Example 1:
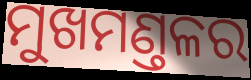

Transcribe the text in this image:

ମୁଖମଣ୍ତଳର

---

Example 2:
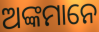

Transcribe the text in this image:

ଅଙ୍କମାନେ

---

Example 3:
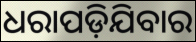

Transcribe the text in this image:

ଧରାପଡ଼ିଯିବାର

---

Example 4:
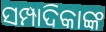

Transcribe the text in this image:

ସମ୍ପାଦିକାଙ୍କ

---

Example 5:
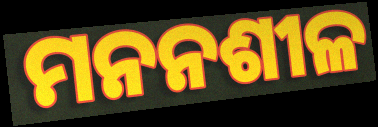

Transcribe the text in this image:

ମନନଶୀଳ